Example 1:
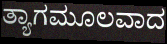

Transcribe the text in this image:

ತ್ಯಾಗಮೂಲವಾದ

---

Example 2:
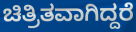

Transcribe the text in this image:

ಚಿತ್ರಿತವಾಗಿದ್ದರೆ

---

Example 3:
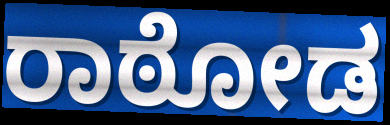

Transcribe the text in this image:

ರಾಠೋಡ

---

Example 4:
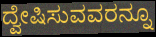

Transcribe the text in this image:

ದ್ವೇಷಿಸುವವರನ್ನೂ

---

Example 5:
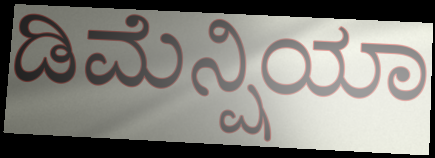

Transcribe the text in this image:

ಡಿಮೆನ್ಷಿಯಾ